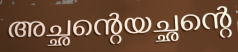
അച്ഛന്റെയച്ഛന്റെ